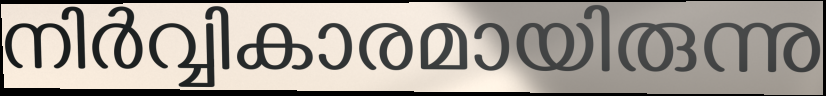
നിർവ്വികാരമായിരുന്നു